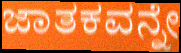
ಜಾತಕವನ್ನೇ